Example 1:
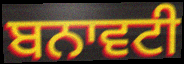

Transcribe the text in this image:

ਬਨਾਵਟੀ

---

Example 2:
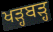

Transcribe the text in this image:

ਖੜ੍ਹਬੜ੍ਹ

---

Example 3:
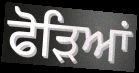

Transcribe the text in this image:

ਫੋੜਿਆਂ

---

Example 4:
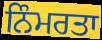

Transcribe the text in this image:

ਨਿੰਮਰਤਾ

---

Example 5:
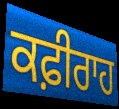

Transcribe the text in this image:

ਕਫ਼ੀਰਾਹ